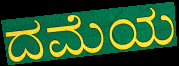
ದಮೆಯ